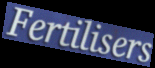
Fertilisers